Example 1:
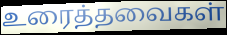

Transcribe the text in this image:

உரைத்தவைகள்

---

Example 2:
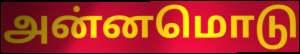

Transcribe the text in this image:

அன்னமொடு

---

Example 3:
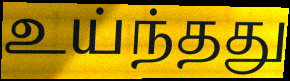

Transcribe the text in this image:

உய்ந்தது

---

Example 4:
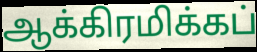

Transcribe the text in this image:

ஆக்கிரமிக்கப்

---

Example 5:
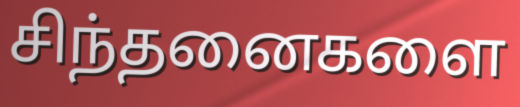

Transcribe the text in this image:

சிந்தனைகளை